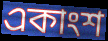
একাংশ